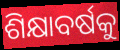
ଶିକ୍ଷାବର୍ଷକୁ